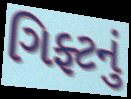
ગિફ્ટનું